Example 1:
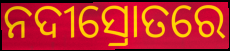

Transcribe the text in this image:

ନଦୀସ୍ରୋତରେ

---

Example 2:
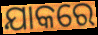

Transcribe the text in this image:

ଯାକରେ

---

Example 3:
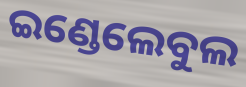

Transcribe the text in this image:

ଇଣ୍ଡେଲେବୁଲ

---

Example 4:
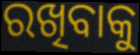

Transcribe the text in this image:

ରଖିବାକୁ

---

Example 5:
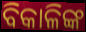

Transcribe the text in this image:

ବିକାଳିଙ୍କ